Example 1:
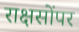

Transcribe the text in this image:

राक्षसोंपर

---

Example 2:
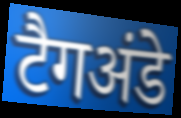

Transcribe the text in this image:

टैगअंडे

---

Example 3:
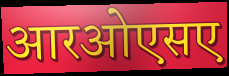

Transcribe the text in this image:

आरओएसए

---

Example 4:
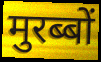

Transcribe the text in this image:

मुरब्बों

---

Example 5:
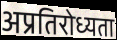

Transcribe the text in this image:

अप्रतिरोध्यता